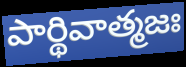
పార్థివాత్మజః